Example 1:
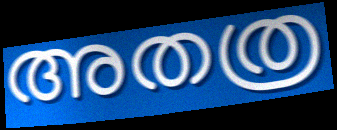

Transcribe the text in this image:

അതത്ര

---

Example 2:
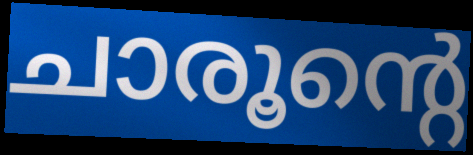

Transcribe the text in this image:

ചാരൂന്റെ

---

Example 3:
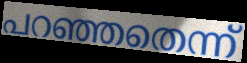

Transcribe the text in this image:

പറഞ്ഞതെന്ന്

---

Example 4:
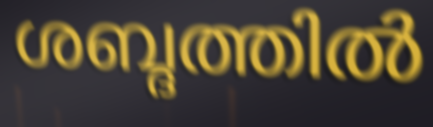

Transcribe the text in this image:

ശബ്ദത്തിൽ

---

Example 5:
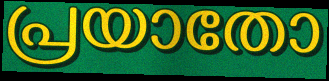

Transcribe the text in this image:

പ്രയാതോ